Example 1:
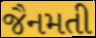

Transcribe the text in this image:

જૈનમતી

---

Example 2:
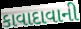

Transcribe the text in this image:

કાવાદાવાની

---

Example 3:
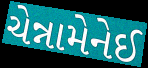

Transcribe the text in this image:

ચેન્નામેનેઈ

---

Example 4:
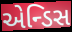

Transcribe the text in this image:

એન્ડિસ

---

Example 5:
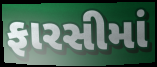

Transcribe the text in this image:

ફારસીમાં